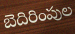
బెదిరింపుల